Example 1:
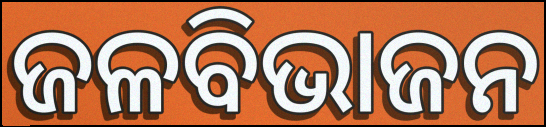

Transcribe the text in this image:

ଜଳବିଭାଜନ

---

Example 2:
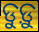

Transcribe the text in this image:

ଡୁଡ଼ୁ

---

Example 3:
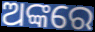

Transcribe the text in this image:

ଅଙ୍କରେ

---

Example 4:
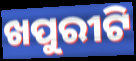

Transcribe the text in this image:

ଖପୁରୀଟି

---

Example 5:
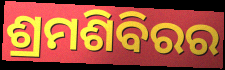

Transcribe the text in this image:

ଶ୍ରମଶିବିରର